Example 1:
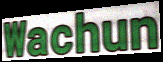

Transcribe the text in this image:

Wachun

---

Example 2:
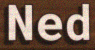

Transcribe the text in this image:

Ned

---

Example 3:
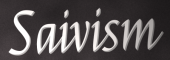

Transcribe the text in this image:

Saivism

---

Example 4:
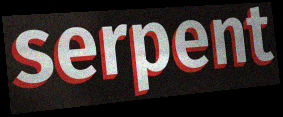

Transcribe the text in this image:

serpent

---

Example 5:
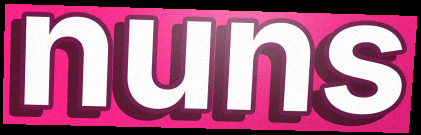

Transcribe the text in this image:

nuns